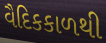
વૈદિકકાળથી